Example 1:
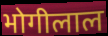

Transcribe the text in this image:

भोगीलाल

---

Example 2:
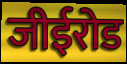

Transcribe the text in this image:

जीईरोड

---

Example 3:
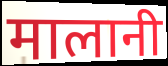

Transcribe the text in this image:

मालानी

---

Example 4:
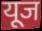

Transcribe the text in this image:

यूज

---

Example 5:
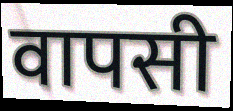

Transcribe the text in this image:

वापसी